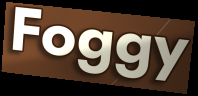
Foggy